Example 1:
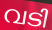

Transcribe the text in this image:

വടി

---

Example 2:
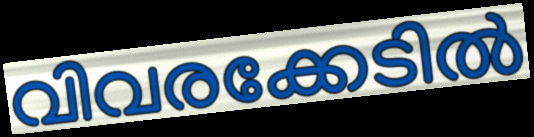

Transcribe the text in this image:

വിവരക്കേടിൽ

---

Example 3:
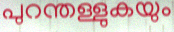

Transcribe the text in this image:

പുറന്തള്ളുകയും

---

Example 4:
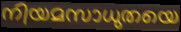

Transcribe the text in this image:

നിയമസാധുതയെ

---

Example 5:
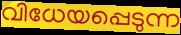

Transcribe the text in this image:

വിധേയപ്പെടുന്ന